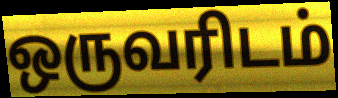
ஒருவரிடம்